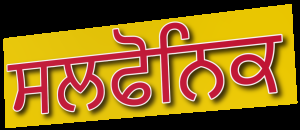
ਸਲਫੋਨਿਕ